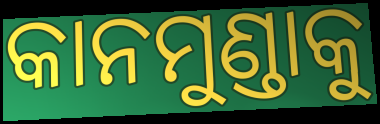
କାନମୁଣ୍ଡାକୁ